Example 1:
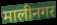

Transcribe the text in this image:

मालीनगर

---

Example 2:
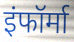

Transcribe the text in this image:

इंफॉर्मा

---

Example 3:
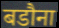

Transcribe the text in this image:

बडौना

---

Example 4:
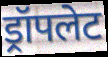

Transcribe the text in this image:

ड्रॉपलेट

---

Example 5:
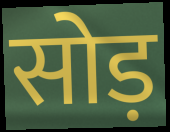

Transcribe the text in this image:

सोड़